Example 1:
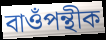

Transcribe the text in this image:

বাওঁপন্থীক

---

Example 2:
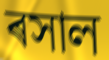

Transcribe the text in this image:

ৰসাল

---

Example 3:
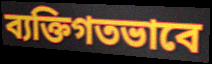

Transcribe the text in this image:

ব্যক্তিগতভাবে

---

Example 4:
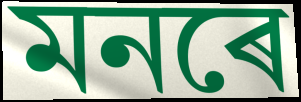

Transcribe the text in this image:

মনৰে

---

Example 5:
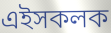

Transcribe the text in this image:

এইসকলক